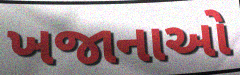
ખજાનાઓ